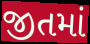
જીતમાં